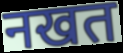
नखत